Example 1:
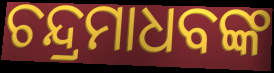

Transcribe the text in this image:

ଚନ୍ଦ୍ରମାଧବଙ୍କ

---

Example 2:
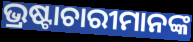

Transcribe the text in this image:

ଭ୍ରଷ୍ଟାଚାରୀମାନଙ୍କ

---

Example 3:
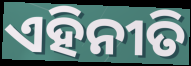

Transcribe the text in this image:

ଏହିନୀତି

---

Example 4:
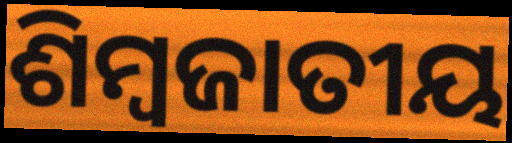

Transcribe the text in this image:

ଶିମ୍ବଜାତୀୟ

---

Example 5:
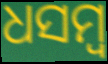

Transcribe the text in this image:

ଧସମ୍ବ